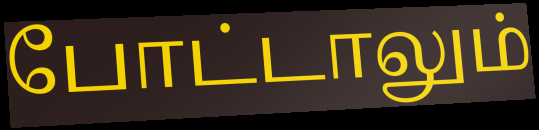
போட்டாலும்